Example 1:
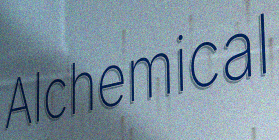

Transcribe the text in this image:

Alchemical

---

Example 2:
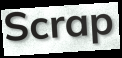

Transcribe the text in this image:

Scrap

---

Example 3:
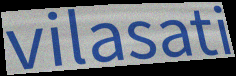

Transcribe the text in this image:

vilasati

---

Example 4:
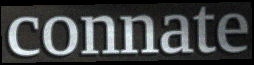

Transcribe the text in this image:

connate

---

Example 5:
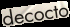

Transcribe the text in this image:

decocto